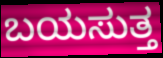
ಬಯಸುತ್ತ